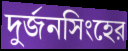
দুর্জনসিংহের